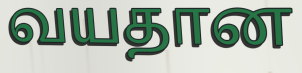
வயதான